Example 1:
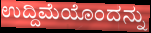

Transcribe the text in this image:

ಉದ್ದಿಮೆಯೊಂದನ್ನು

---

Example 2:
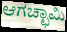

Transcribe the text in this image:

ಆಗಚ್ಛಾಮಿ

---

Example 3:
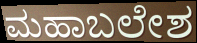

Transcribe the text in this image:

ಮಹಾಬಲೇಶ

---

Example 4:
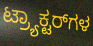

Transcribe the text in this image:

ಟ್ರ್ಯಾಕ್ಟರ್‌ಗಳ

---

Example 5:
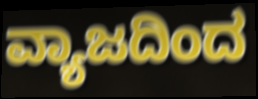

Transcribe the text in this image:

ವ್ಯಾಜದಿಂದ